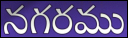
నగరము